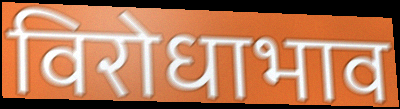
विरोधाभाव